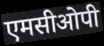
एमसीओपी